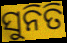
ସୁନିତି